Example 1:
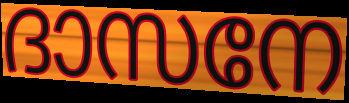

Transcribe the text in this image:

ദാസനേ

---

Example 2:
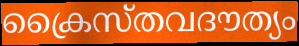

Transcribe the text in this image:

ക്രൈസ്തവദൗത്യം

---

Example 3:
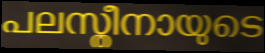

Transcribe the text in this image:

പലസ്തീനായുടെ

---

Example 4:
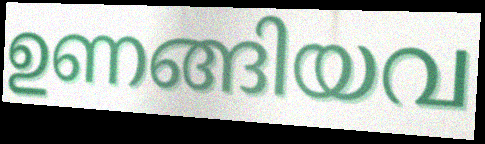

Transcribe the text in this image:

ഉണങ്ങിയവ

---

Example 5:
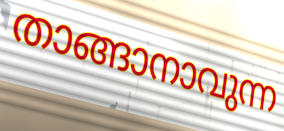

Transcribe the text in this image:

താങ്ങാനാവുന്ന